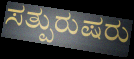
ಸತ್ಪುರುಷರು